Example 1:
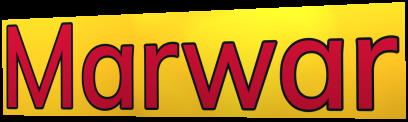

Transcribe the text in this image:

Marwar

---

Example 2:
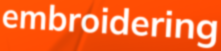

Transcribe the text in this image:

embroidering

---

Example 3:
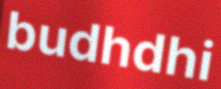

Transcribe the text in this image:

budhdhi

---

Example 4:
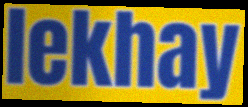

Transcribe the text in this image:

lekhay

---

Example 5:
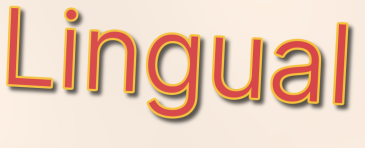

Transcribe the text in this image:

Lingual